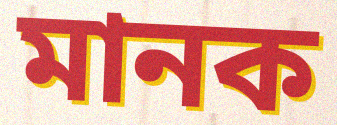
মানক